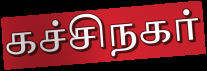
கச்சிநகர்